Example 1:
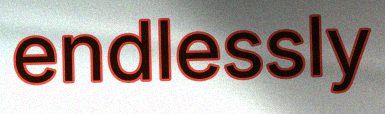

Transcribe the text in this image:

endlessly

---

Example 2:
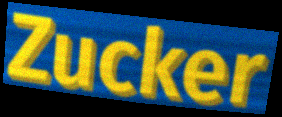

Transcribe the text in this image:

Zucker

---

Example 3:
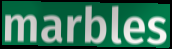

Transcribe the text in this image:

marbles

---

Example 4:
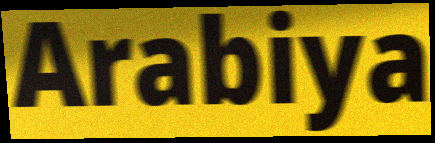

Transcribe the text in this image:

Arabiya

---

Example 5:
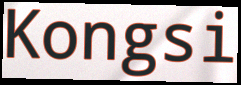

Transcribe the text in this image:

Kongsi